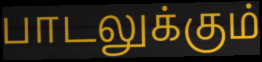
பாடலுக்கும்